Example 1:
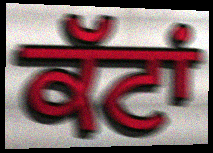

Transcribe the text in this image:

ਕੱਟਾਂ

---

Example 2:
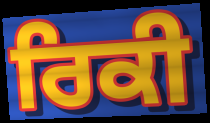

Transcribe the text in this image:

ਰਿਕੀ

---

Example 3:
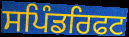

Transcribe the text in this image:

ਸਪਿੰਡਰਿਫਟ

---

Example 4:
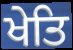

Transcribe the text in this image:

ਖੇਤਿ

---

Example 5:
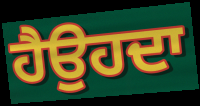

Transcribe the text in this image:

ਹੈਉਹਦਾ